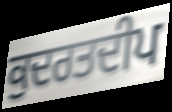
ਕੁਦਰਤਦੀਪ